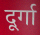
दूर्गा